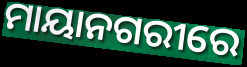
ମାୟାନଗରୀରେ